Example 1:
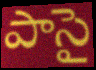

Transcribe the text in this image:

పాసై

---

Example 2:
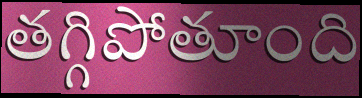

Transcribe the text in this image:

తగ్గిపోతూంది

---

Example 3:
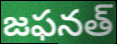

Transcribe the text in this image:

జఫనత్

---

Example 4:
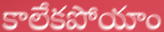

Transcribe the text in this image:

కాలేకపోయాం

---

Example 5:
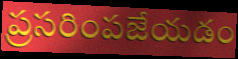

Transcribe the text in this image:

ప్రసరింపజేయడం